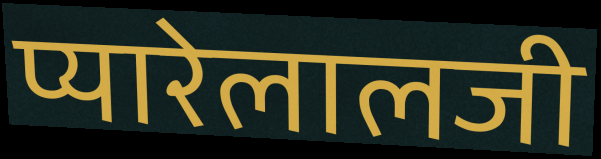
प्यारेलालजी